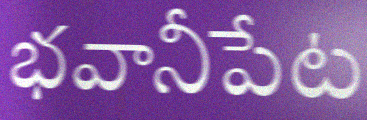
భవానీపేట